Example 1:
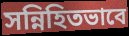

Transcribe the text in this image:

সন্নিহিতভাবে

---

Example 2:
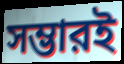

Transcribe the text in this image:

সম্ভারই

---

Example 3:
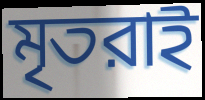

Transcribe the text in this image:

মৃতরাই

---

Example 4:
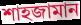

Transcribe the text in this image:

শাহজামান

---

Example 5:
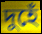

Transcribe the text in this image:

দুহেঁ